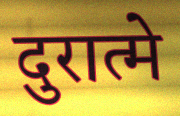
दुरात्मे